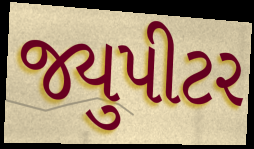
જ્યુપીટર